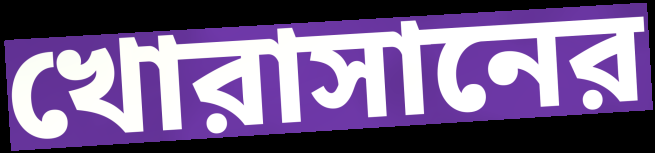
খোরাসানের